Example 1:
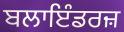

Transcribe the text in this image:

ਬਲਾਇੰਡਰਜ਼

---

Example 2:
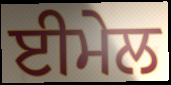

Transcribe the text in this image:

ਈਮੇਲ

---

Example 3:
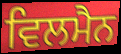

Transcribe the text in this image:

ਵਿਲਮੈਨ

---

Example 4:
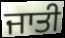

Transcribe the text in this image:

ਜਾਤੀ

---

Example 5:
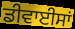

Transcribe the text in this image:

ਡੀਵਾਈਸਾਂ